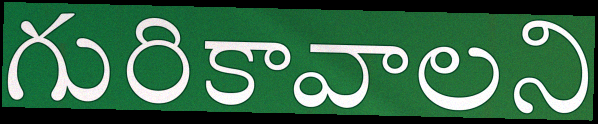
గురికావాలని